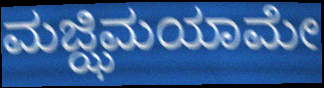
ಮಜ್ಝಿಮಯಾಮೇ